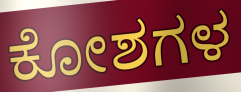
ಕೋಶಗಳ